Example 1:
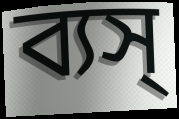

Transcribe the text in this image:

ব্যস্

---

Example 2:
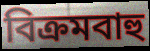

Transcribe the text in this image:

বিক্রমবাহু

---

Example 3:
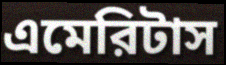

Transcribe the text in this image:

এমেরিটাস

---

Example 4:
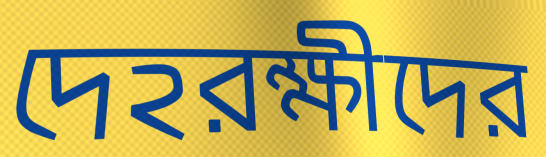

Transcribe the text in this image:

দেহরক্ষীদের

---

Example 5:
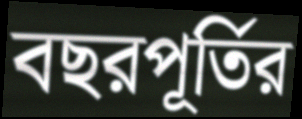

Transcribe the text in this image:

বছরপূর্তির